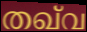
തഖ്‌വ